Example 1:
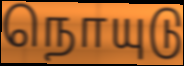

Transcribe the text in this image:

நொயுடு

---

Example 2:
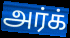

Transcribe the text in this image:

அர்க்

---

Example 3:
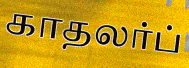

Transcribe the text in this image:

காதலர்ப்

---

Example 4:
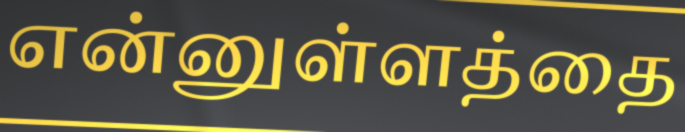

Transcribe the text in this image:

என்னுள்ளத்தை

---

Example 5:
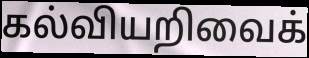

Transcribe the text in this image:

கல்வியறிவைக்